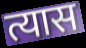
त्यास